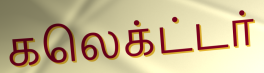
கலெக்ட்டர்